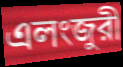
এলংজুরী